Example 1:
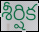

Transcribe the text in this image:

శీర్షిక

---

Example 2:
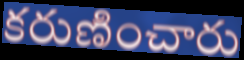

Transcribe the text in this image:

కరుణించారు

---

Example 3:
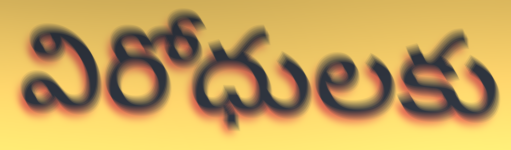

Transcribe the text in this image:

విరోధులకు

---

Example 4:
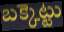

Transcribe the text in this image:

బక్కెట్టు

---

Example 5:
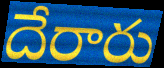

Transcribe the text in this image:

దేరారు